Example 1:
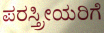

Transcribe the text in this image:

ಪರಸ್ತ್ರೀಯರಿಗೆ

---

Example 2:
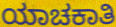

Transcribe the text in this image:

ಯಾಚಕಾತಿ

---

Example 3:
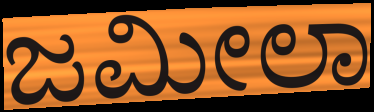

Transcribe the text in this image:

ಜಮೀಲಾ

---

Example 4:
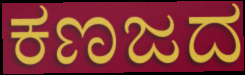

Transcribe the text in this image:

ಕಣಜದ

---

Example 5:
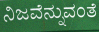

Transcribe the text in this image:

ನಿಜವೆನ್ನುವಂತೆ